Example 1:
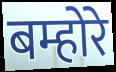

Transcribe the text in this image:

बम्होरे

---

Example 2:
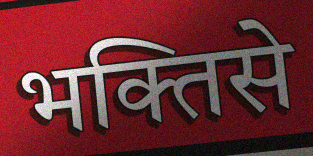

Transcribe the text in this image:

भक्तिसे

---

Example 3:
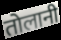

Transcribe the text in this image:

तोलानी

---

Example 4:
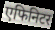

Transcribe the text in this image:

एफिनिटर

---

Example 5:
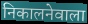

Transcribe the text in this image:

निकालनेवाला